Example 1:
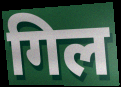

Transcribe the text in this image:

गिल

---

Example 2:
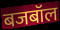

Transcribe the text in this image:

बजबॉल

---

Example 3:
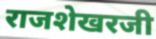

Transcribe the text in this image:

राजशेखरजी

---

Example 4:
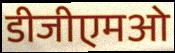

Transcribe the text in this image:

डीजीएमओ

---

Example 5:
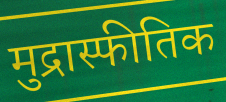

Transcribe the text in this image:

मुद्रास्फीतिक